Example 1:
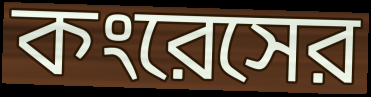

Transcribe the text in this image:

কংরেসের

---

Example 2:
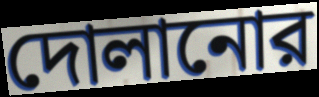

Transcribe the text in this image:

দোলানোর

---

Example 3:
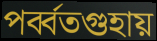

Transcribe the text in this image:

পর্ব্বতগুহায়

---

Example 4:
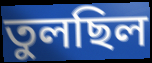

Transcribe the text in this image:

তুলছিল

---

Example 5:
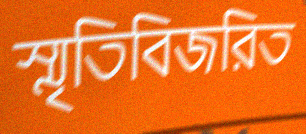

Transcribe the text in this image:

স্মৃতিবিজরিত